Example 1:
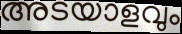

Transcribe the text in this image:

അടയാളവും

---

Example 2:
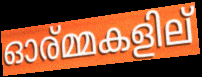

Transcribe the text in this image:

ഓര്മ്മകളില്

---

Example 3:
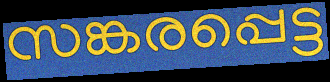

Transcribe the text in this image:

സങ്കരപ്പെട്ട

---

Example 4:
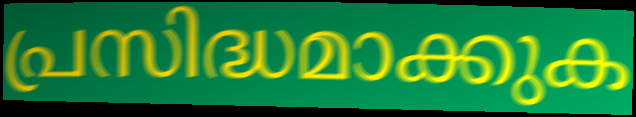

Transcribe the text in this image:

പ്രസിദ്ധമാക്കുക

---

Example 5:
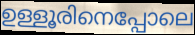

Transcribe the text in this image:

ഉള്ളൂരിനെപ്പോലെ